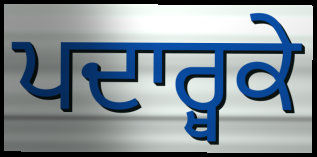
ਪਦਾਰ੍ਥਕੇ